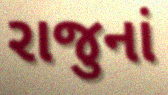
રાજુનાં